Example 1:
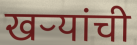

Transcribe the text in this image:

खऱ्यांची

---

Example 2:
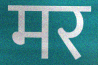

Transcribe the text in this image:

मर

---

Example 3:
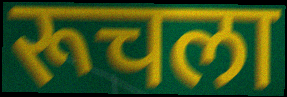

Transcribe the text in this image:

रूचला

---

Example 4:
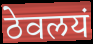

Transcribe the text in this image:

ठेवलयं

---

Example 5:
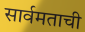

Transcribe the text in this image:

सार्वमताची